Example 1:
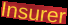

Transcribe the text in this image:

Insurer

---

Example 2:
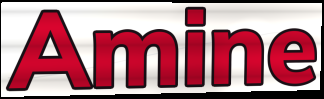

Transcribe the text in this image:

Amine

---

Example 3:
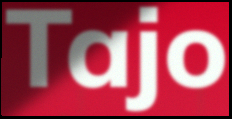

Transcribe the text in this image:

Tajo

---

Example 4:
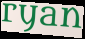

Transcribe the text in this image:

ryan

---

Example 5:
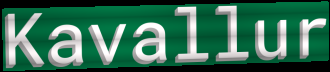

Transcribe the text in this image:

Kavallur